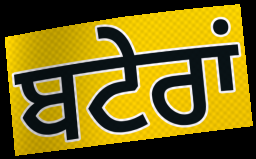
ਬਟੇਰਾਂ